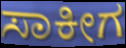
ಸಾಕೀಗ